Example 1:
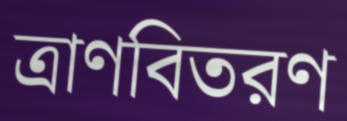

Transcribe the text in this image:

ত্রাণবিতরণ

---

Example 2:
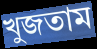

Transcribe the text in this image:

খুজতাম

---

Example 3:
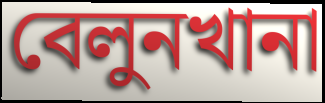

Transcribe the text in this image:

বেলুনখানা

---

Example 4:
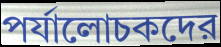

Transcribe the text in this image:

পর্যালোচকদের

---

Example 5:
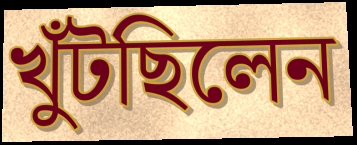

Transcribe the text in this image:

খুঁটছিলেন